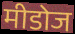
मीडोज